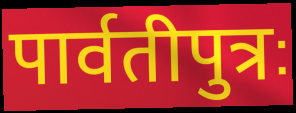
पार्वतीपुत्रः